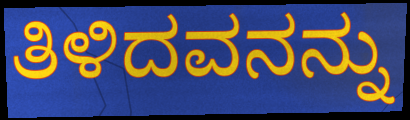
ತಿಳಿದವನನ್ನು